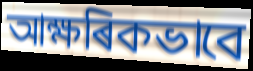
আক্ষৰিকভাবে